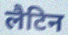
लैटिन